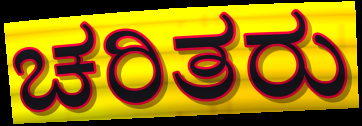
ಚರಿತರು